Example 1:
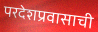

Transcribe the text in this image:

परदेशप्रवासाची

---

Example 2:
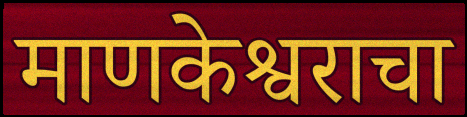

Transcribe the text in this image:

माणकेश्वराचा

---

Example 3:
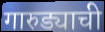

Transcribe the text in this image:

गारुड्याची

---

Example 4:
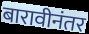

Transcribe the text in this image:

बारावीनंतर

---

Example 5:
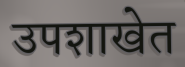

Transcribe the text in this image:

उपशाखेत